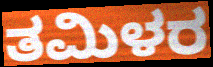
ತಮಿಳರ